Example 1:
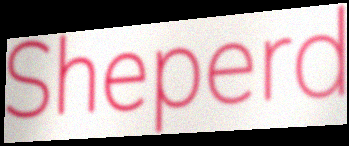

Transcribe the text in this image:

Sheperd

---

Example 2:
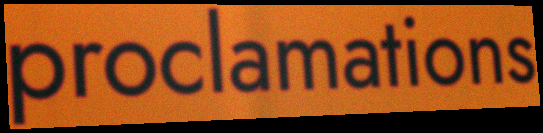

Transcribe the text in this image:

proclamations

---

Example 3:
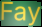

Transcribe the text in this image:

Fay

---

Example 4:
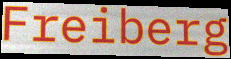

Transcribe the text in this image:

Freiberg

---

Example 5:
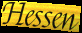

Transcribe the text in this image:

Hessen